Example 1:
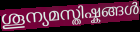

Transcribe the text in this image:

ശൂന്യമസ്തിഷ്കങ്ങൾ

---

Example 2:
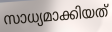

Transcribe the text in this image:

സാധ്യമാക്കിയത്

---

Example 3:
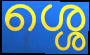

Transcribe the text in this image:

ശ്ശെ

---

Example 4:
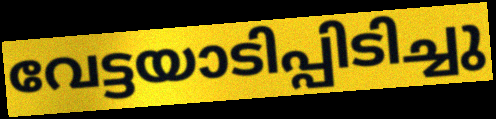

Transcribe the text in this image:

വേട്ടയാടിപ്പിടിച്ചു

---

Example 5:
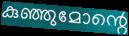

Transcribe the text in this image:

കുഞ്ഞുമോന്റെ